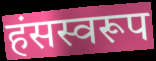
हंसस्वरूप